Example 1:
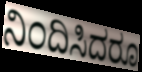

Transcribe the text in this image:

ನಿಂದಿಸಿದರೂ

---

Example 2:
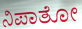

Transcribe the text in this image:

ನಿಪಾತೋ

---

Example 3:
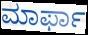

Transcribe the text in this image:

ಮಾರ್ಫಾ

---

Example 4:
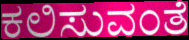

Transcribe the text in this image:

ಕಲಿಸುವಂತೆ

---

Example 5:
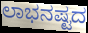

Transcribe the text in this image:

ಲಾಭನಷ್ಟದ